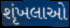
શૃંખલાઓ